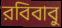
রবিবাবু